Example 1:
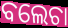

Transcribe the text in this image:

ବଲେଚା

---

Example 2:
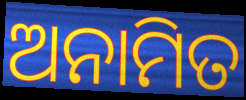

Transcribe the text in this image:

ଅନାମିତ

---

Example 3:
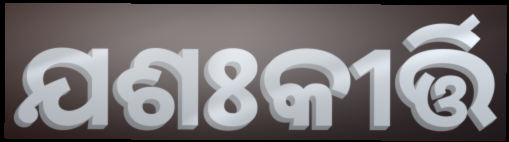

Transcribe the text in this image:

ଯଶଃକୀର୍ତ୍ତି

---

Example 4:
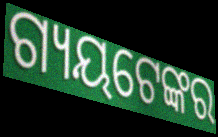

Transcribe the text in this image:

ଗ୍ୟୟଟେଙ୍କର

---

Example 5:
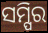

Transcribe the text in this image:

ସମ୍ପିର